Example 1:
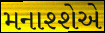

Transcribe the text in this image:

મનાશ્શેએ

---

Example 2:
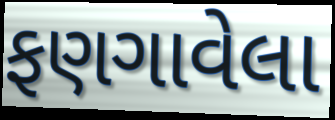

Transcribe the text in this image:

ફણગાવેલા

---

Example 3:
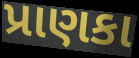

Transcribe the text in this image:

પ્રાણકા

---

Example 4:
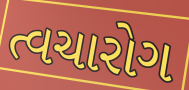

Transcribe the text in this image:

ત્વચારોગ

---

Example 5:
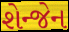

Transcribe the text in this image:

શેન્જેન